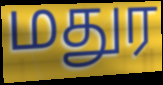
மதுர